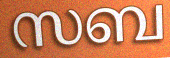
സബ